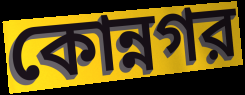
কোন্নগর